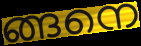
ങ്ങനെ